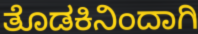
ತೊಡಕಿನಿಂದಾಗಿ